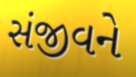
સંજીવને